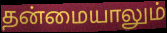
தன்மையாலும்